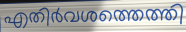
എതിർവശത്തെത്തി